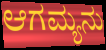
ಆಗಮ್ಯನು